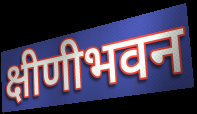
क्षीणीभवन